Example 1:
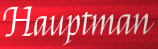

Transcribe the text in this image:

Hauptman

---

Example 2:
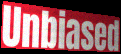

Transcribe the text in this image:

Unbiased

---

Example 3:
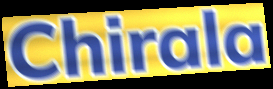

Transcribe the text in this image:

Chirala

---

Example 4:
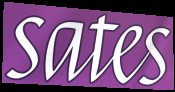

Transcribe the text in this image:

sates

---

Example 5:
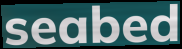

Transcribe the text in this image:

seabed